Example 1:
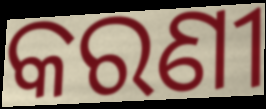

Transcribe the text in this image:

କରଣୀ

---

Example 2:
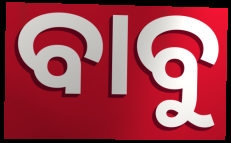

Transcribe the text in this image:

ବାବୁ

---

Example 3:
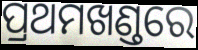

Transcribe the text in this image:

ପ୍ରଥମଖଣ୍ଡରେ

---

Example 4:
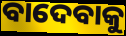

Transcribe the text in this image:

ବାଦେବାକୁ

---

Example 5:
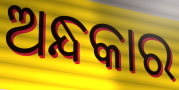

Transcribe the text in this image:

ଅନ୍ଧକାର